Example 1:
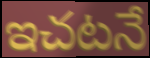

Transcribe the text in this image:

ఇచటనే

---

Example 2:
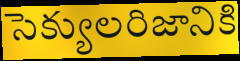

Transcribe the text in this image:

సెక్యులరిజానికి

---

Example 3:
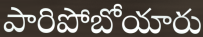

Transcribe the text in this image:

పారిపోబోయారు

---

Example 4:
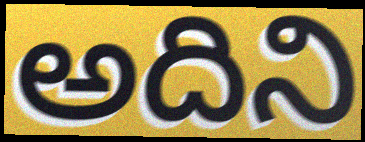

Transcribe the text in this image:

అదిని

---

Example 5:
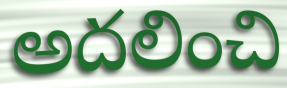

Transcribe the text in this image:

అదలించి